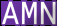
AMN